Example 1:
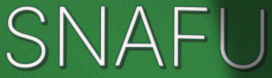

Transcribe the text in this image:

SNAFU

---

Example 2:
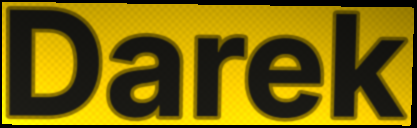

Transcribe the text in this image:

Darek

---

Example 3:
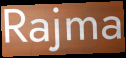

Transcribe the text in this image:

Rajma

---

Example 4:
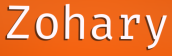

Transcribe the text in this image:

Zohary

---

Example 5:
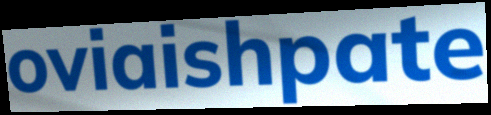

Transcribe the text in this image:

oviaishpate